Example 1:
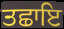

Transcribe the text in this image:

ਤਛਾਇ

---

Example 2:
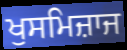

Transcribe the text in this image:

ਖੁਸਮਿਜ਼ਾਜ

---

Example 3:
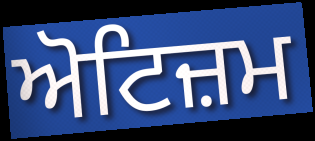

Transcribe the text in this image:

ਅੋਟਿਜ਼ਮ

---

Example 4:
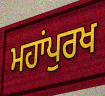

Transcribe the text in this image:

ਮਹਾਂਪੁਰਖ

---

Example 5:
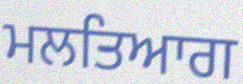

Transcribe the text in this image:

ਮਲਤਿਆਗ